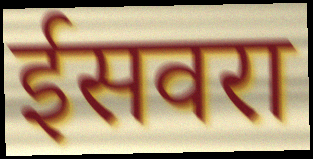
ईसवरा